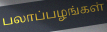
பலாப்பழங்கள்